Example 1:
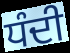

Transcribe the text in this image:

ਧੰਦੀ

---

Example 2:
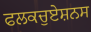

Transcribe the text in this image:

ਫਲਕਚੁਏਸ਼ਨਸ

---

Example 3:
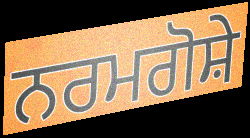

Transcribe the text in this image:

ਨਰਮਗੋਸ਼ੇ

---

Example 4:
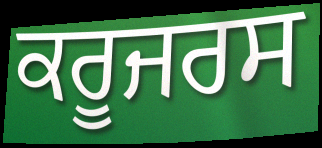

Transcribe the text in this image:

ਕਰੂਜਰਸ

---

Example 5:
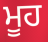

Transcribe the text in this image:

ਮੂਹ